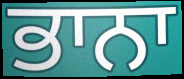
ਭਾਨਾ